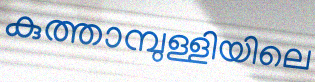
കുത്താമ്പുള്ളിയിലെ